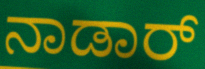
ನಾಡಾರ್